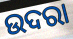
ଉଦରା